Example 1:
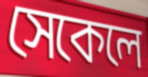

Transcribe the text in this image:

সেকেলে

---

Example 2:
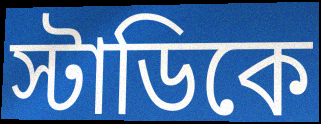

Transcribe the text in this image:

স্টাডিকে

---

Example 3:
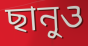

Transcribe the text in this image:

ছানুও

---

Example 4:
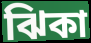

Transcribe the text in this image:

ঝিকা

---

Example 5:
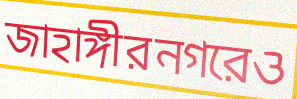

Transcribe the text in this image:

জাহাঙ্গীরনগরেও